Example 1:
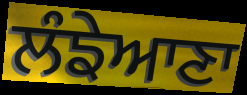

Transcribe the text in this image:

ਲੰਙੇਆਣਾ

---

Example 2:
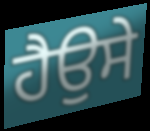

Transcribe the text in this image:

ਹੈਉਸੇ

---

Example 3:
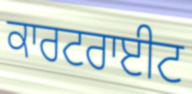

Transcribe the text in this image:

ਕਾਰਟਰਾਈਟ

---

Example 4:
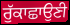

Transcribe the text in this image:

ਰੁੱਕਾਛਾਉਣੀ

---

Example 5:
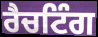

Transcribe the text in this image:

ਰੈਚਟਿੰਗ